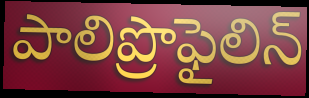
పాలిప్రొఫైలిన్